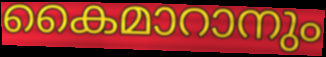
കൈമാറാനും